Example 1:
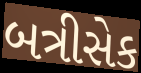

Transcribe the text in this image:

બત્રીસેક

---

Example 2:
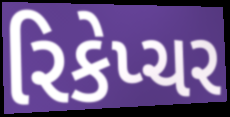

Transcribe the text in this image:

રિકેપ્ચર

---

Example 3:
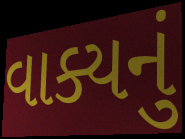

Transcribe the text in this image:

વાક્યનું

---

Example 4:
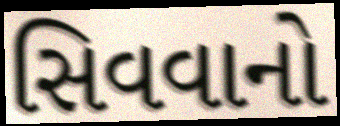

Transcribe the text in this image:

સિવવાનો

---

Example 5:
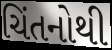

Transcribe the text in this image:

ચિંતનોથી